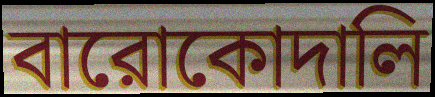
বারোকোদালি